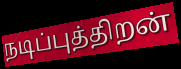
நடிப்புத்திறன்